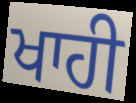
ਖਾਹੀ